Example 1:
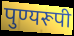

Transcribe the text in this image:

पुण्यरूपी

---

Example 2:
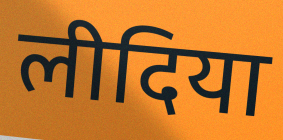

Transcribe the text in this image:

लीदिया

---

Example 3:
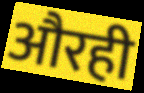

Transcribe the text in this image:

औरही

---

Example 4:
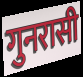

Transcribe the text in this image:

गुनरासी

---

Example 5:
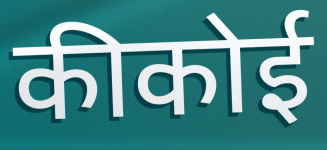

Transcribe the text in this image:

कीकोई